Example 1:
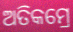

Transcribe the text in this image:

ଅତିକମ୍ରେ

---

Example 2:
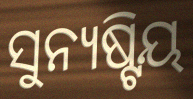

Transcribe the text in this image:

ସୁନ୍ୟଷ୍ଟିୟ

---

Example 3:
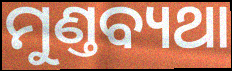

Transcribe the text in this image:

ମୁଣ୍ତବ୍ୟଥା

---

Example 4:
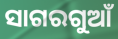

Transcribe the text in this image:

ସାଗରଗୁଆଁ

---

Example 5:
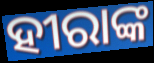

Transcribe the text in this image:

ହୀରାଙ୍କ